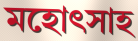
মহোৎসাহ